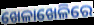
ଖେଳାଖେଳିରେ